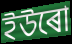
ইউৰো